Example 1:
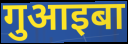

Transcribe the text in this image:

गुआइबा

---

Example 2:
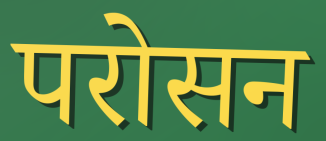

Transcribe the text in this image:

परोसन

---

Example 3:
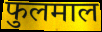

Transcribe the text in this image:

फुलमाल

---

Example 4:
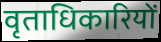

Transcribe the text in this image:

वृताधिकारियों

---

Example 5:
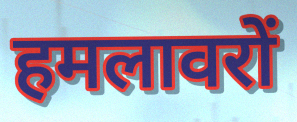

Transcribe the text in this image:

हमलावरों